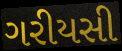
ગરીયસી